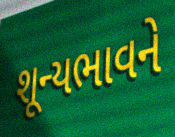
શૂન્યભાવને